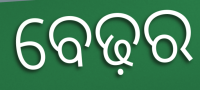
ବେଢ଼ର